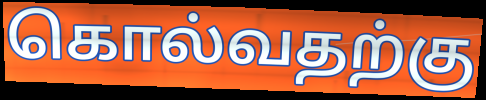
கொல்வதற்கு